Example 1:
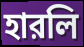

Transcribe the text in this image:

হারলি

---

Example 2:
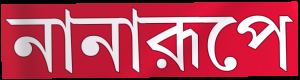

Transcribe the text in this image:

নানারূপে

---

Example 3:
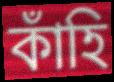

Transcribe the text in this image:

কাঁহি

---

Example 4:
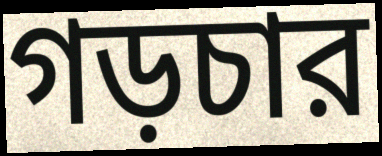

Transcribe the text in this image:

গড়চার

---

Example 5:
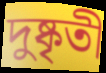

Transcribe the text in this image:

দুষ্কৃতী